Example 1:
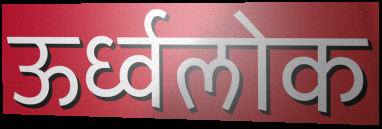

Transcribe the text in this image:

ऊर्ध्वलोक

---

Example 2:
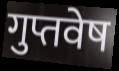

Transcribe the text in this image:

गुप्तवेष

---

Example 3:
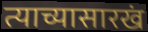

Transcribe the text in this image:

त्याच्यासारखं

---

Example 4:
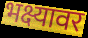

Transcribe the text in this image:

भक्ष्यावर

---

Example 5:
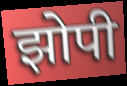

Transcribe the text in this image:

झोपी